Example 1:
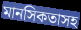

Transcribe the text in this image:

মানসিকতাসহ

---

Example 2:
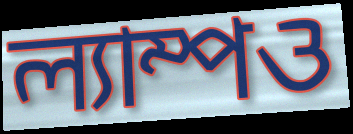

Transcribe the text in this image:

ল্যাম্পও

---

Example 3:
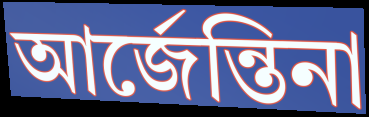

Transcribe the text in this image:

আর্জেন্তিনা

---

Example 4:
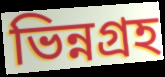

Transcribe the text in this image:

ভিন্নগ্রহ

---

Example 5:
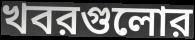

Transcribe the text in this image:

খবরগুলোর